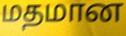
மதமான